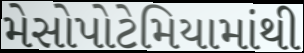
મેસોપોટેમિયામાંથી